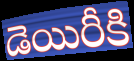
డెయిరీకి